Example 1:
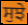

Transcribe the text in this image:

ਸੁਝੇ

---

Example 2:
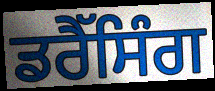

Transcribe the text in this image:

ਡਰੈੱਸਿੰਗ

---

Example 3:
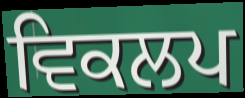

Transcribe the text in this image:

ਵਿਕਲਪ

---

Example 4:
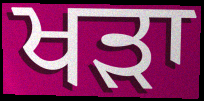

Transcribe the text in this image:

ਖੜਾ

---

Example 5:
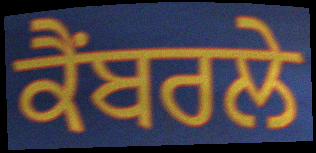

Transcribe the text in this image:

ਕੈਂਬਰਲੇ